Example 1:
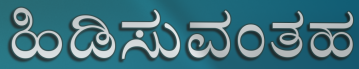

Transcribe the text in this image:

ಹಿಡಿಸುವಂತಹ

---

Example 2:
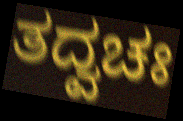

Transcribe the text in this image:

ತದ್ವಚಃ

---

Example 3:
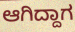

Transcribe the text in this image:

ಆಗಿದ್ದಾಗ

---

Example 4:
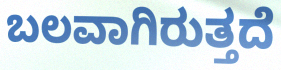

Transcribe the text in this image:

ಬಲವಾಗಿರುತ್ತದೆ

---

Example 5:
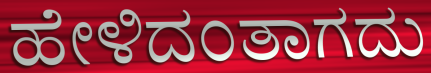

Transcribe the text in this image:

ಹೇಳಿದಂತಾಗದು